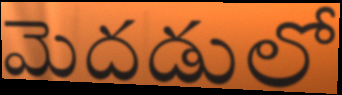
మెదడులో